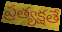
ప్రత్యక్షతే